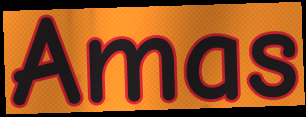
Amas